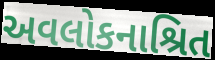
અવલોકનાશ્રિત